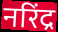
नरिंद्र